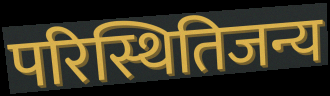
परिस्थितिजन्य